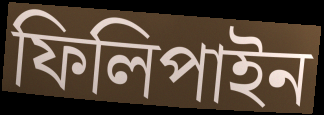
ফিলিপাইন